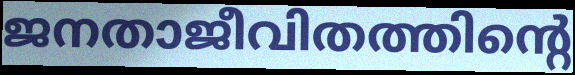
ജനതാജീവിതത്തിന്റെ